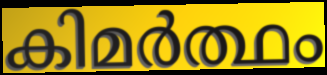
കിമർത്ഥം